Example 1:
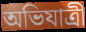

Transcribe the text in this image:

অভিযাত্রী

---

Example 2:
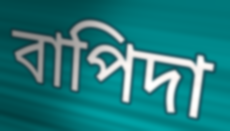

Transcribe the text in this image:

বাপিদা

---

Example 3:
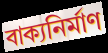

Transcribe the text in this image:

বাক্যনির্মাণ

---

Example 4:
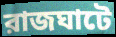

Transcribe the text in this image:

রাজঘাটে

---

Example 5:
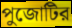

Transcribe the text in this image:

পুজোটির